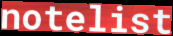
notelist